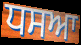
ਧਸਆ